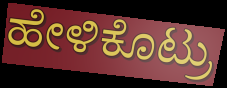
ಹೇಳಿಕೊಟ್ರು